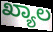
ಖ್ಯಾಲ